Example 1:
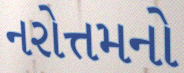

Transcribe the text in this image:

નરોત્તમનો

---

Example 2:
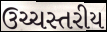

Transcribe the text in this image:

ઉચ્ચસ્તરીય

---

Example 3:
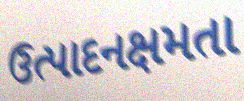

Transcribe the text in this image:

ઉત્પાદનક્ષમતા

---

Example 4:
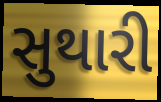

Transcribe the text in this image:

સુથારી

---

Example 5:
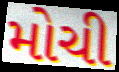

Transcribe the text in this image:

મોચી